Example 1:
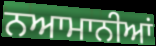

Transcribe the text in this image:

ਨਆਮਾਨੀਆਂ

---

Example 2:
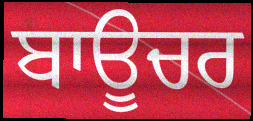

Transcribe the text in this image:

ਬਾਊਚਰ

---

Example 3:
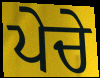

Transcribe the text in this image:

ਪੇਚੇ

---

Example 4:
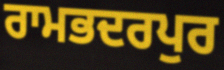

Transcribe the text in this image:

ਰਾਮਭਦਰਪੁਰ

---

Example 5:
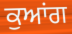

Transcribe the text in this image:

ਕੁਆਂਗ